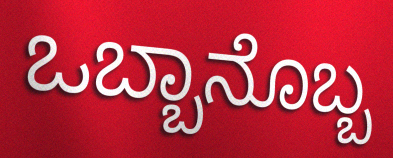
ಒಬ್ಬಾನೊಬ್ಬ